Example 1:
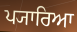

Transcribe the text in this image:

ਪ੍ਯਾਰਿਆ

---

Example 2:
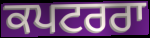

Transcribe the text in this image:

ਕਪਟਰਰਾ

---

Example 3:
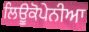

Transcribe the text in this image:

ਲਿਊਕੋਪੇਨੀਆ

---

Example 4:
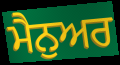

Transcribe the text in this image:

ਮੈਨੁਅਰ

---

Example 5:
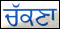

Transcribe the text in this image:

ਚੱਕਣਾ